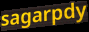
sagarpdy